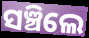
ସଞ୍ଚିଲେ